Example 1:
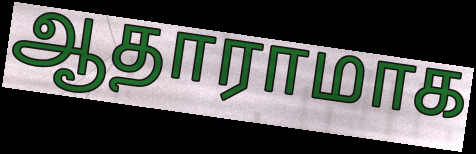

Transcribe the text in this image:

ஆதாராமாக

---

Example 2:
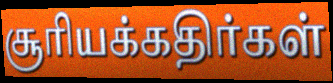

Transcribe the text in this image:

சூரியக்கதிர்கள்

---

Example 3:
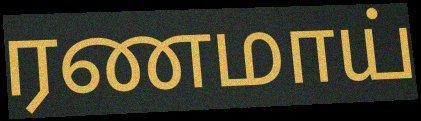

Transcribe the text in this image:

ரணமாய்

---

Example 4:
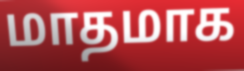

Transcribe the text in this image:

மாதமாக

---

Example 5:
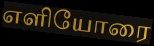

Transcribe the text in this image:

எளியோரை